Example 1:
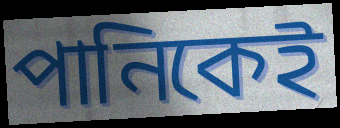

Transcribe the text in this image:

পানিকেই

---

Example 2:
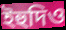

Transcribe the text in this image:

ইহুদিও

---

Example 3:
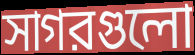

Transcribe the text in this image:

সাগরগুলো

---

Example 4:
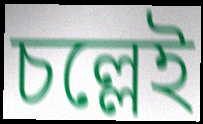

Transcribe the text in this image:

চল্লেই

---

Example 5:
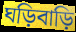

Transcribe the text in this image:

ঘড়িবাড়ি